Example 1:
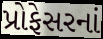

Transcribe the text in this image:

પ્રોફેસરનાં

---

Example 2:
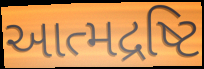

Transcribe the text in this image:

આત્મદ્રષ્ટિ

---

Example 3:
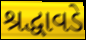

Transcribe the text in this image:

શ્રદ્ધાવડે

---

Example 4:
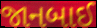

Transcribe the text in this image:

જાનબાઈ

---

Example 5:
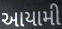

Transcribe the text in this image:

આયામી